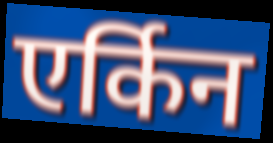
एर्किन